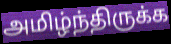
அமிழ்ந்திருக்க